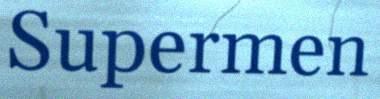
Supermen